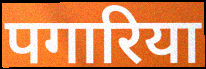
पगारिया